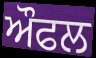
ਔਫਲ